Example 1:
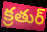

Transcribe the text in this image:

క్రతుర్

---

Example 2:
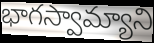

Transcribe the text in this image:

భాగస్వామ్యాని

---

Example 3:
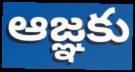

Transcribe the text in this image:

ఆజ్ఞకు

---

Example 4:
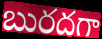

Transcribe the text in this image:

బురదగా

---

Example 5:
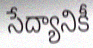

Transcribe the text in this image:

సేద్యానికీ